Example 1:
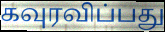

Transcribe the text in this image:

கவுரவிப்பது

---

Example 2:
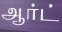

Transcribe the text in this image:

ஆர்ட்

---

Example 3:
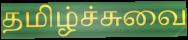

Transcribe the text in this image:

தமிழ்ச்சுவை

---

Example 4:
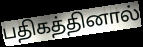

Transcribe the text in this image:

பதிகத்தினால்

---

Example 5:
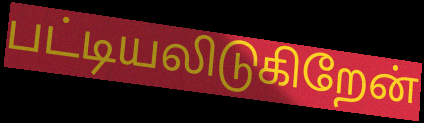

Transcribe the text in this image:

பட்டியலிடுகிறேன்